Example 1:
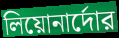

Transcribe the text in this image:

লিয়োনার্দোর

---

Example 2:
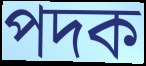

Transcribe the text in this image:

পদক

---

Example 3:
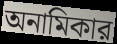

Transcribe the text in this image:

অনামিকার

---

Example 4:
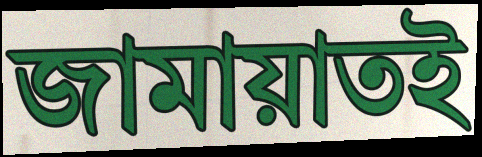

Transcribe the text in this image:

জামায়াতই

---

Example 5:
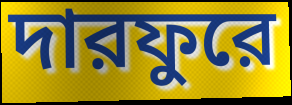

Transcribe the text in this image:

দারফুরে